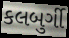
કલબુર્ગી